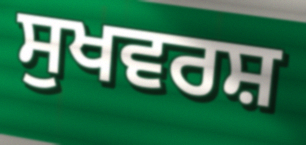
ਸੁਖਵਰਸ਼